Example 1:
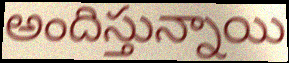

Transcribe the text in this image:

అందిస్తున్నాయి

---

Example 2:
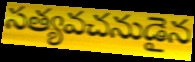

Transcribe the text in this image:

సత్యవచనుడైన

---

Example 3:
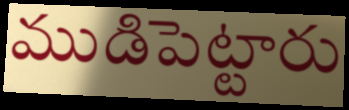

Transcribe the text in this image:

ముడిపెట్టారు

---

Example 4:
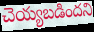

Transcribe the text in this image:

చెయ్యబడిందని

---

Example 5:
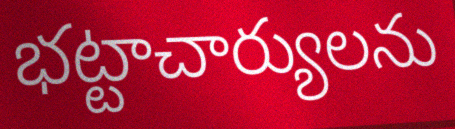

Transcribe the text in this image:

భట్టాచార్యులను